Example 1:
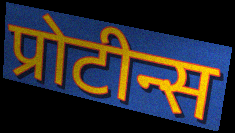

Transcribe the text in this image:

प्रोटीन्स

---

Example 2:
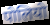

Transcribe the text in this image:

पोलियो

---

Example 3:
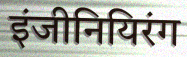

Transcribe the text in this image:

इंजीनियिरंग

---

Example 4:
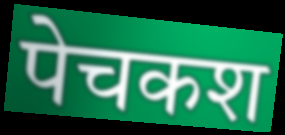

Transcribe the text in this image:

पेचकश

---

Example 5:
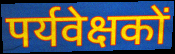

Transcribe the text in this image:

पर्यवेक्षकों